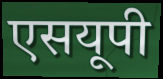
एसयूपी